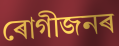
ৰোগীজনৰ